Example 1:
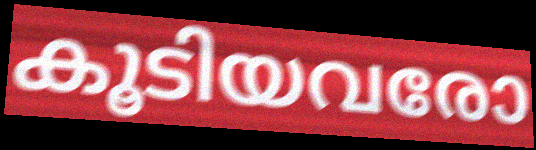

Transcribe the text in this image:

കൂടിയവരോ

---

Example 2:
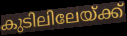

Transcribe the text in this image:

കുടിലിലേയ്ക്ക്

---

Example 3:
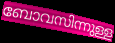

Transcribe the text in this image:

ബോവസിന്നുള്ള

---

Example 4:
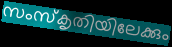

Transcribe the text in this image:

സംസ്കൃതിയിലേക്കും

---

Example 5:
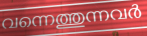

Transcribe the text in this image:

വന്നെത്തുന്നവർ